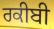
ਰਕੀਬੀ